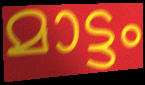
മാട്ടം